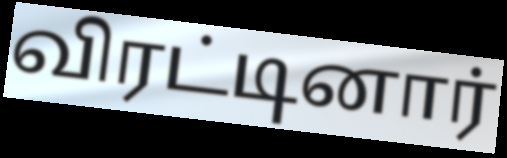
விரட்டினார்